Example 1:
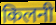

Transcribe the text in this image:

किलनी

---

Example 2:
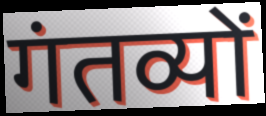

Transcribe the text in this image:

गंतव्यों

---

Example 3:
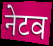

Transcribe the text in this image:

नेटव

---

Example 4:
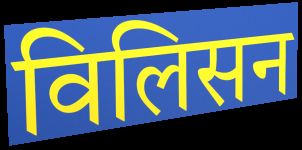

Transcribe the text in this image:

विलिसन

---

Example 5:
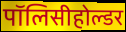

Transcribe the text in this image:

पॉलिसीहोल्डर